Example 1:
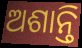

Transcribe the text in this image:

ଅଶାନ୍ତି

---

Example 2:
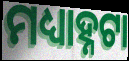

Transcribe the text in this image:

ମଧ୍ୟାହ୍ନଟା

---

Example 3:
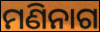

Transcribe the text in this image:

ମଣିନାଗ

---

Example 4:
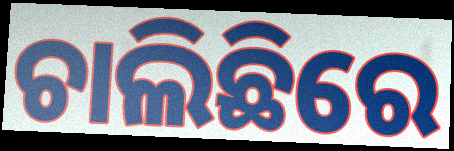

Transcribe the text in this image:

ଚାଲିଛିରେ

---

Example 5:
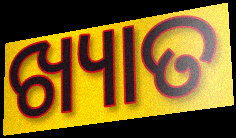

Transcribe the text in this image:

ଖ୍ୟାତ